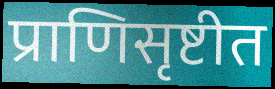
प्राणिसृष्टीत